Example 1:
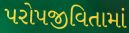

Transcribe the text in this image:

પરોપજીવિતામાં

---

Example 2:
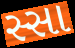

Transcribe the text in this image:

સ્સા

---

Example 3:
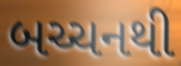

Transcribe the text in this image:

બચ્ચનથી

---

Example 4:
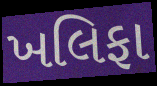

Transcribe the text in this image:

ખલિફા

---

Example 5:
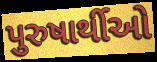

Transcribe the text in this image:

પુરુષાર્થીઓ